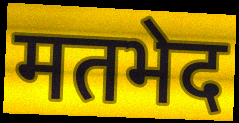
मतभेद